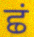
ਛਂ